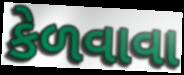
કેળવાવા